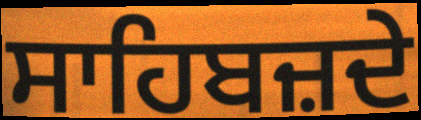
ਸਾਹਿਬਜ਼ਦੇ